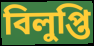
বিলুপ্তি